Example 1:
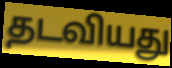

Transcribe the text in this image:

தடவியது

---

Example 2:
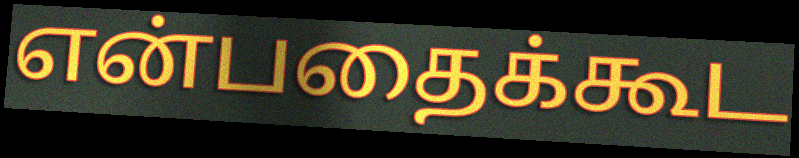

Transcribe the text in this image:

என்பதைக்கூட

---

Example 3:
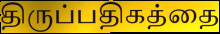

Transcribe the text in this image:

திருப்பதிகத்தை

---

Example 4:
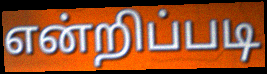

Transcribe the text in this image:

என்றிப்படி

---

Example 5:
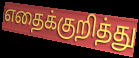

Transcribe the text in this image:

எதைக்குறித்து